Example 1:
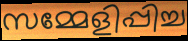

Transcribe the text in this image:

സമ്മേളിപ്പിച്ച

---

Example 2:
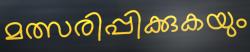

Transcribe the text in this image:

മത്സരിപ്പിക്കുകയും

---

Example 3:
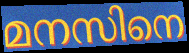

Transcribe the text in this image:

മനസിനെ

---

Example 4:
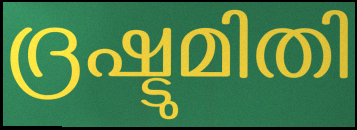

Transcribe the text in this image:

ദ്രഷ്ടുമിതി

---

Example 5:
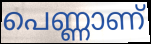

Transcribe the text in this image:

പെണ്ണാണ്